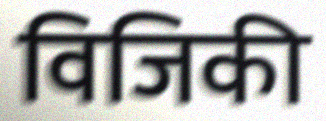
विजिकी